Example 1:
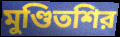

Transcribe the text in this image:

মুণ্ডিতশির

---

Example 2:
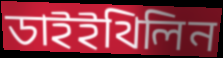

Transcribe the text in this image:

ডাইইথিলিন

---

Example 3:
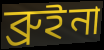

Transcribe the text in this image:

ব্রুইনা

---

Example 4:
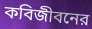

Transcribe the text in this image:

কবিজীবনের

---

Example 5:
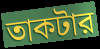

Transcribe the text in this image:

তাকটার